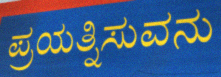
ಪ್ರಯತ್ನಿಸುವನು